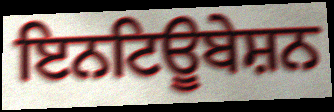
ਇਨਟਿਊਬੇਸ਼ਨ